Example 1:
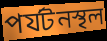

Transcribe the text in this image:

পর্যটনস্থল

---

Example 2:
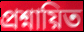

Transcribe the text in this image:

প্রশ্নায়িত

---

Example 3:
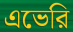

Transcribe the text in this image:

এভেরি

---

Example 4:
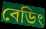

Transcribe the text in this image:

বেডিং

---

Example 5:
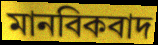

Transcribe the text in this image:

মানবিকবাদ